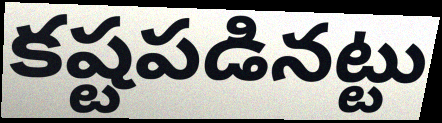
కష్టపడినట్టు